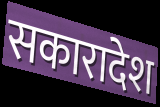
सकारादेश